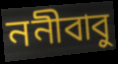
ননীবাবু